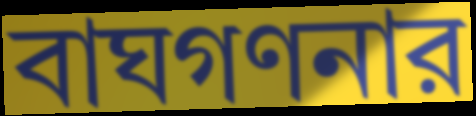
বাঘগণনার